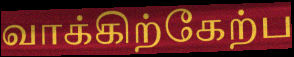
வாக்கிற்கேற்ப